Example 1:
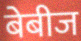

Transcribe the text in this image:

बेबीज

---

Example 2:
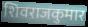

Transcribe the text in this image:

शिवराजकुमार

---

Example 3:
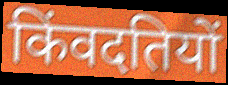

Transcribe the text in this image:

किंवदतियों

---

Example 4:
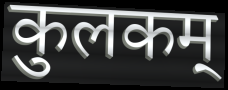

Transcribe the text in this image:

कुलकम्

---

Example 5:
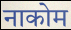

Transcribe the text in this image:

नाकोम